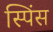
स्पिंस